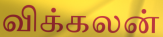
விக்கலன்